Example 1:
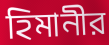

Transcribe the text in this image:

হিমানীর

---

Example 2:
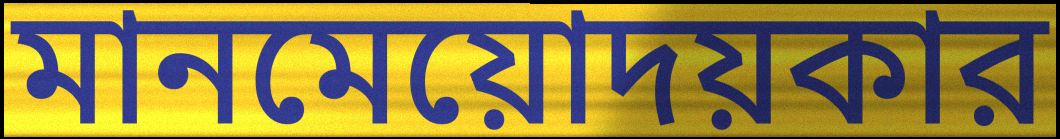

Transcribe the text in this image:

মানমেয়োদয়কার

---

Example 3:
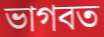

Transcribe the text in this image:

ভাগবত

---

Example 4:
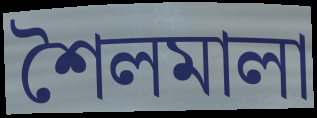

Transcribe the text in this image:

শৈলমালা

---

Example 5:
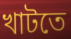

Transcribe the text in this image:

খাটতে